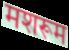
मशरूम